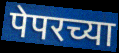
पेपरच्या